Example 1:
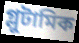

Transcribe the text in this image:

গ্লুটামিক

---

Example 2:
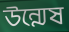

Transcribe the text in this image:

উন্মেষ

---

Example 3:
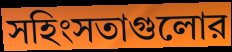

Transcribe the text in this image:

সহিংসতাগুলোর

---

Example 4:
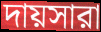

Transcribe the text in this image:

দায়সারা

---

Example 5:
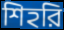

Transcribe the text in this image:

শিহরি